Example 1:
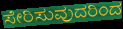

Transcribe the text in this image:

ಸೇರಿಸುವುದರಿಂದ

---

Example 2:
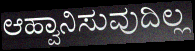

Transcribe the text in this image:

ಆಹ್ವಾನಿಸುವುದಿಲ್ಲ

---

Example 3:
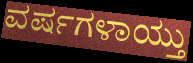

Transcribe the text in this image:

ವರ್ಷಗಳಾಯ್ತು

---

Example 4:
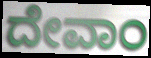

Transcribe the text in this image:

ದೇವಾಂ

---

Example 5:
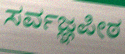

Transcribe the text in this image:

ಸರ್ವಜ್ಞಪೀಠ